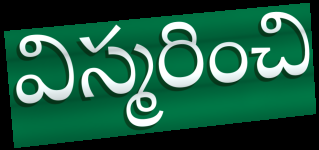
విస్మరించి